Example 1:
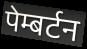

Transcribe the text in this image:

पेम्बर्टन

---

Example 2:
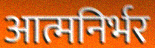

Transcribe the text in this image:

आत्मनिर्भर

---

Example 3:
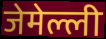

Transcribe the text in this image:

जेमेल्ली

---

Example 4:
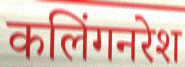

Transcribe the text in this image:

कलिंगनरेश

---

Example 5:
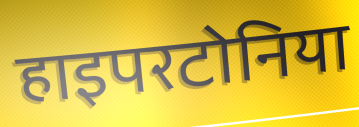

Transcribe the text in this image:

हाइपरटोनिया